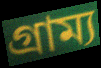
গ্রাম্য